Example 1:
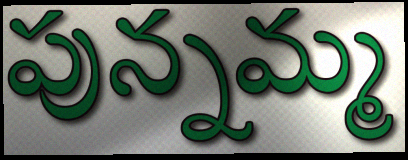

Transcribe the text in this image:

పున్నమ్మ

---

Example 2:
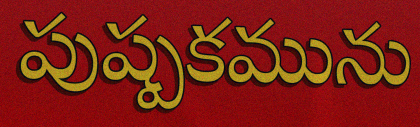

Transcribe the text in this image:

పుష్పకమును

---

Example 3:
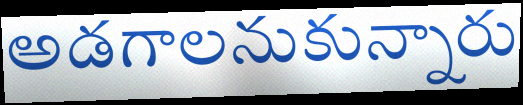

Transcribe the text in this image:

అడగాలనుకున్నారు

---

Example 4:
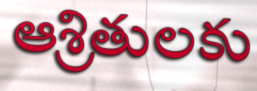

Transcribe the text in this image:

ఆశ్రితులకు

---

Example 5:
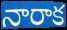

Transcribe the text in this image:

నారాక